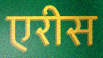
एरीस